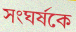
সংঘর্ষকে